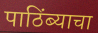
पाठिंब्याचा